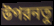
উপরনতু